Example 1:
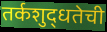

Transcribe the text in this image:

तर्कशुद्धतेची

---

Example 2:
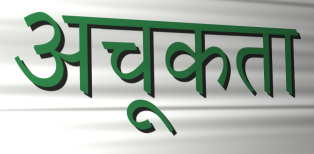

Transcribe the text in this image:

अचूकता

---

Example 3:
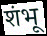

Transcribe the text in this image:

शंभू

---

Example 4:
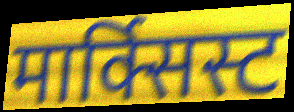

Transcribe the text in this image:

मार्क्सिस्ट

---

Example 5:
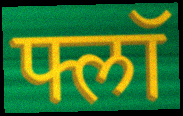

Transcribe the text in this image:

फ्लॉ